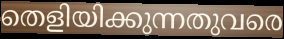
തെളിയിക്കുന്നതുവരെ